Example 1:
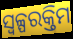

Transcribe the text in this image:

ସ୍ୱଳ୍ପରକ୍ତିମ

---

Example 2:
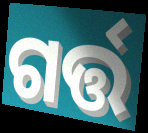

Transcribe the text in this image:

ଗର୍ତ୍ତ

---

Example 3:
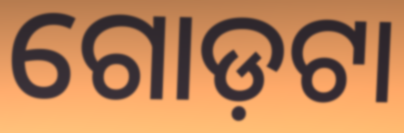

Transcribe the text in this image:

ଗୋଡ଼ଟା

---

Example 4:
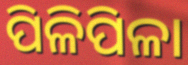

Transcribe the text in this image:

ପିଳିପିଳା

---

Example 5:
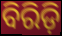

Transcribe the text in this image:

ବିରିଡ଼ି